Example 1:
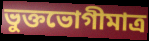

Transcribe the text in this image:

ভুক্তভোগীমাত্র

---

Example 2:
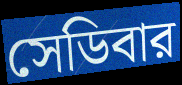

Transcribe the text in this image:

সেডিবার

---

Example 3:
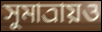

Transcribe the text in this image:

সুমাত্রায়ও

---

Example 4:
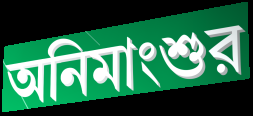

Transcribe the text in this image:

অনিমাংশুর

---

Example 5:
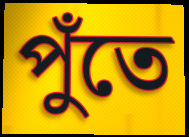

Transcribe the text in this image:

পুঁতে